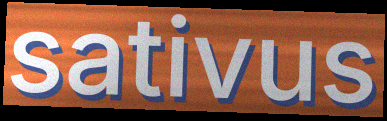
sativus